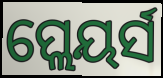
ପ୍ଲେୟର୍ସ